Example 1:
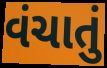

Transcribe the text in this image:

વંચાતું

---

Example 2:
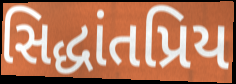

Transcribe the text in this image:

સિદ્ધાંતપ્રિય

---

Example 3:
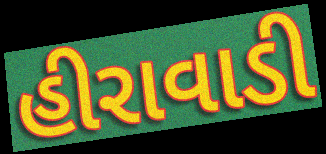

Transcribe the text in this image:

હીરાવાડી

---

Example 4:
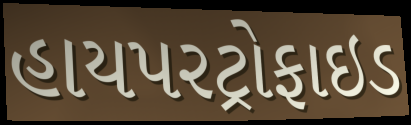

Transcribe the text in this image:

હાયપરટ્રોફાઇડ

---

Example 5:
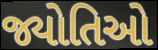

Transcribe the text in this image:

જ્યોતિઓ